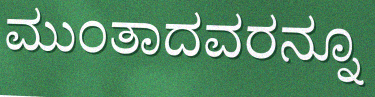
ಮುಂತಾದವರನ್ನೂ